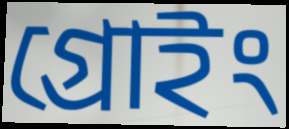
গ্রোইং